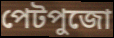
পেটপুজো